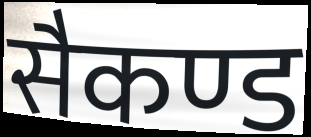
सैकण्ड